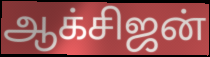
ஆக்சிஜன்